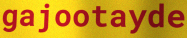
gajootayde